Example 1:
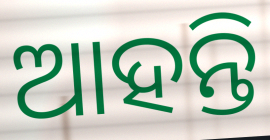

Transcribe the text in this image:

ଆହନ୍ତି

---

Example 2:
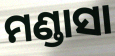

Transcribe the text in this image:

ମଣ୍ଡାସା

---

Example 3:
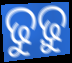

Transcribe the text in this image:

ଢୁଢ଼ୁ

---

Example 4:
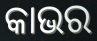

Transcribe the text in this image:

କାଭର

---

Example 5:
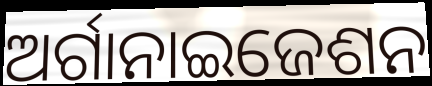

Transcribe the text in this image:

ଅର୍ଗାନାଇଜେଶନ